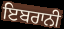
ਇਬਰਾਨੀ